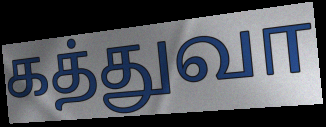
கத்துவா